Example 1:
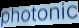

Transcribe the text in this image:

photonic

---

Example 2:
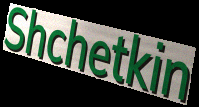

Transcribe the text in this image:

Shchetkin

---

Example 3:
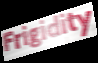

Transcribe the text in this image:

Frigidity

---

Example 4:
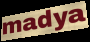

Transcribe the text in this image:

madya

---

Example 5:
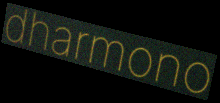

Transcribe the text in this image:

dharmono